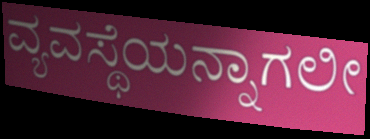
ವ್ಯವಸ್ಥೆಯನ್ನಾಗಲೀ